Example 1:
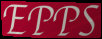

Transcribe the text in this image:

EPPS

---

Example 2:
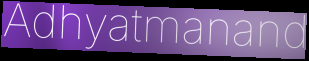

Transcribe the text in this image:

Adhyatmanand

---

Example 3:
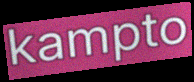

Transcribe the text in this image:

kampto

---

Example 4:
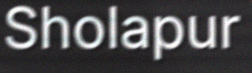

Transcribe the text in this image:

Sholapur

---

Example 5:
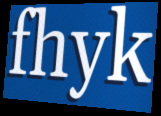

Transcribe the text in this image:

fhyk